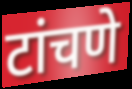
टांचणे